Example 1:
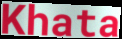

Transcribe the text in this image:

Khata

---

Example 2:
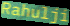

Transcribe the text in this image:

Rahulji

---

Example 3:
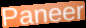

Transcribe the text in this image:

Paneer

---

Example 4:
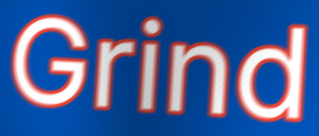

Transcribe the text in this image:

Grind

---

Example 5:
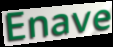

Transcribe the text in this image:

Enave